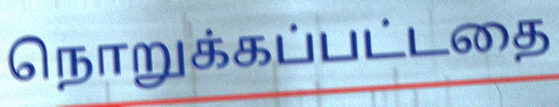
நொறுக்கப்பட்டதை